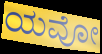
ಯವೋ